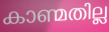
കാണ്മതില്ല